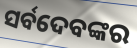
ସର୍ବଦେବଙ୍କର